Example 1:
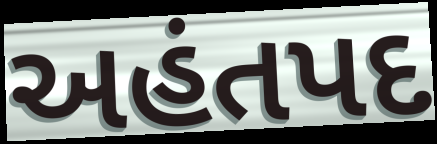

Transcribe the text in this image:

અહંતપદ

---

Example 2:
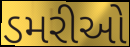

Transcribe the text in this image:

ડમરીઓ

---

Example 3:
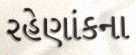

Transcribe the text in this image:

રહેણાંકના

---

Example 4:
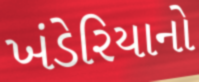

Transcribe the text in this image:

ખંડેરિયાનો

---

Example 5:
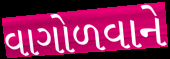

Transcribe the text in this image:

વાગોળવાને